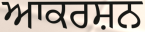
ਆਕਰਸ਼ਨ